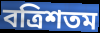
বত্রিশতম